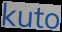
kuto